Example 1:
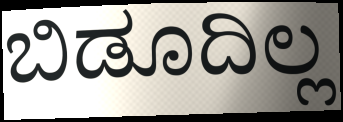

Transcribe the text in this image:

ಬಿಡೂದಿಲ್ಲ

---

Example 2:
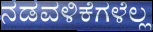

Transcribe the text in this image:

ನಡವಳಿಕೆಗಳೆಲ್ಲ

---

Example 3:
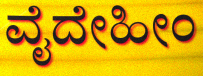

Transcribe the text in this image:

ವೈದೇಹೀಂ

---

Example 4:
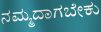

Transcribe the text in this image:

ನಮ್ಮದಾಗಬೇಕು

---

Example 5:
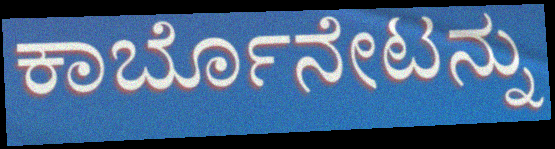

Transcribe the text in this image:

ಕಾರ್ಬೊನೇಟನ್ನು